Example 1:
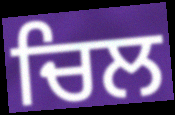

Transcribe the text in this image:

ਚਿਲ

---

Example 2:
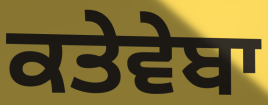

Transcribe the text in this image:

ਕਤੇਵੇਬਾ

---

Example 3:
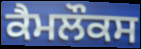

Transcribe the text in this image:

ਕੈਮਲੌਕਸ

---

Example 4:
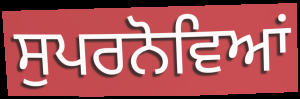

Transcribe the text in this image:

ਸੁਪਰਨੋਵਿਆਂ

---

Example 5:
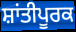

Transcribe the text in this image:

ਸ਼ਾਂਤੀਪੂਰਕ